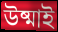
উষ্মাই